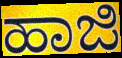
ಹಾಜಿ